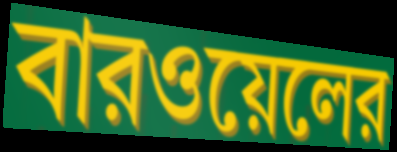
বারওয়েলের